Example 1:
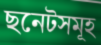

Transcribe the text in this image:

ছনেটসমূহ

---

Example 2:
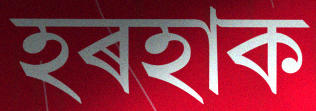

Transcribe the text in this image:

হৰহাক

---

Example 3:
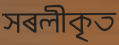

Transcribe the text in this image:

সৰলীকৃত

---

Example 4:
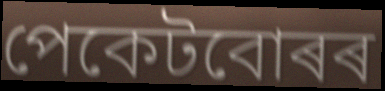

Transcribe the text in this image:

পেকেটবোৰৰ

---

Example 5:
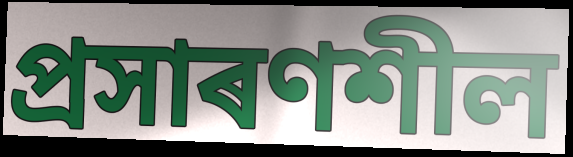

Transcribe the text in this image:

প্ৰসাৰণশীল